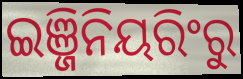
ଇଞ୍ଜିନିୟରିଂରୁ